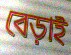
বেড়াই